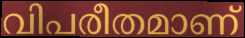
വിപരീതമാണ്